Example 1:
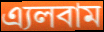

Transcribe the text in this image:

এ্যলবাম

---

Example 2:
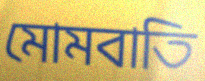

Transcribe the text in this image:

মোমবাতি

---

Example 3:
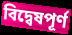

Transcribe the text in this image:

বিদ্বেষপূর্ণ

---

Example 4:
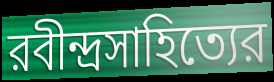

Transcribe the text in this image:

রবীন্দ্রসাহিত্যের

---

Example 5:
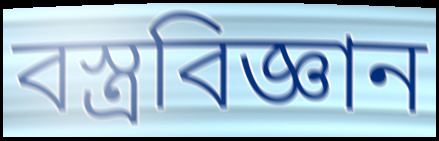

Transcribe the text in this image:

বস্ত্রবিজ্ঞান